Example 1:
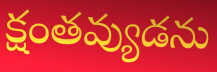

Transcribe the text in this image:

క్షంతవ్యుడను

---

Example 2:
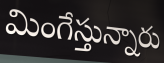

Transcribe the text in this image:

మింగేస్తున్నారు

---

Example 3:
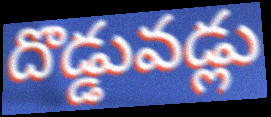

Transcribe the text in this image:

దొడ్డువడ్లు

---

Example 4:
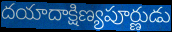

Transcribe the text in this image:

దయాదాక్షిణ్యపూర్ణుడు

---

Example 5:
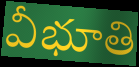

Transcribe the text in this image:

వీభూతి